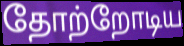
தோற்றோடிய